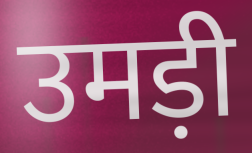
उमड़ी